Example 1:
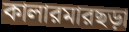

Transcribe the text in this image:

কালারমারছড়া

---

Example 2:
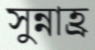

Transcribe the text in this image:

সুন্নাহ্র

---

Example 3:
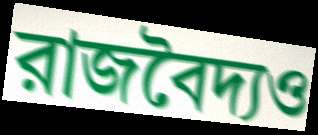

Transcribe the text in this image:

রাজবৈদ্যও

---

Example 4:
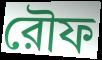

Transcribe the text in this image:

রৌফ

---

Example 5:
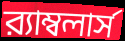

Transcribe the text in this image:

র‍্যাম্বলার্স